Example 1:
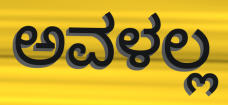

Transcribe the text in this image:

ಅವಳಲ್ಲ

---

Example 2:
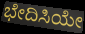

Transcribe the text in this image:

ಭೇದಿಸಿಯೇ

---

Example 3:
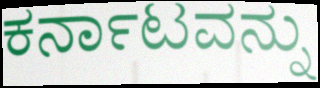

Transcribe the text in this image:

ಕರ್ನಾಟವನ್ನು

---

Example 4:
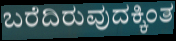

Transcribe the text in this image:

ಬರೆದಿರುವುದಕ್ಕಿಂತ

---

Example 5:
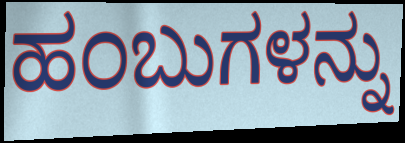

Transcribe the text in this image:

ಹಂಬುಗಳನ್ನು